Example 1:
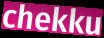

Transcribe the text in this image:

chekku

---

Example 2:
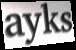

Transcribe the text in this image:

ayks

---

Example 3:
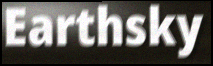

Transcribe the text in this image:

Earthsky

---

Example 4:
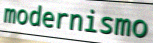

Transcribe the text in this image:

modernismo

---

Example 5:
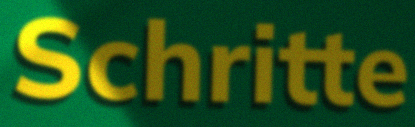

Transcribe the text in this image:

Schritte